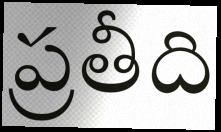
ప్రతీది